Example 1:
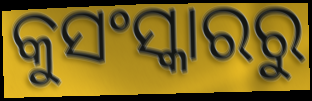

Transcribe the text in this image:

କୁସଂସ୍କାରରୁ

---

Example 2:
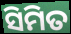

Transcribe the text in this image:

ସିମିତ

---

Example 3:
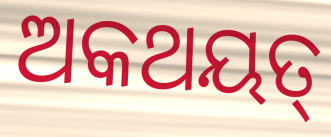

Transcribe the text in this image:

ଅକଥୟତ୍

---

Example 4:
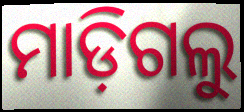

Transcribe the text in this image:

ମାଡ଼ିଗଲୁ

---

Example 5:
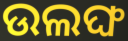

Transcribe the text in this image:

ଉଲଙ୍ଘ